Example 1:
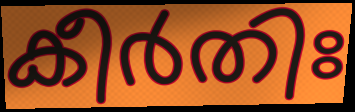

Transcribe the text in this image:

കീർതിഃ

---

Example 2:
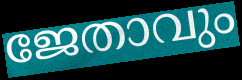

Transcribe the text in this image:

ജേതാവും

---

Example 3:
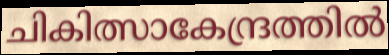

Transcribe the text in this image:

ചികിത്സാകേന്ദ്രത്തിൽ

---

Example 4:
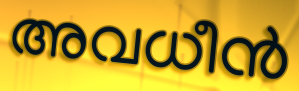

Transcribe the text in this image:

അവധീൻ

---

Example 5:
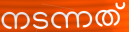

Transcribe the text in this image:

നടന്നത്